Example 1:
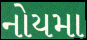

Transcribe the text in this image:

નોયમા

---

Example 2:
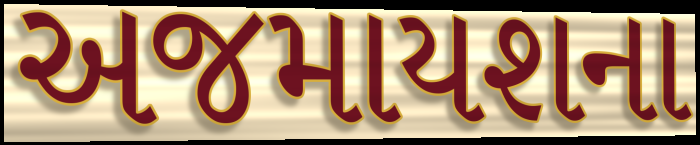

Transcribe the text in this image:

અજમાયશના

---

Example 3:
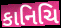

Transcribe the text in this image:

કાનિચિ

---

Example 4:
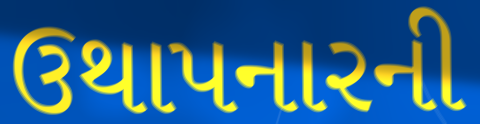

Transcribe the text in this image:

ઉથાપનારની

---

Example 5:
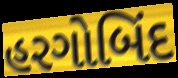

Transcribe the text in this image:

હરગોબિંદ